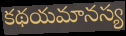
కథయమానస్య